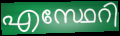
എസ്ഥേറി